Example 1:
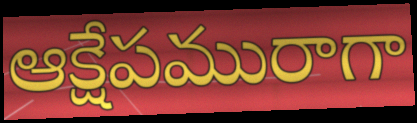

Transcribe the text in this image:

ఆక్షేపమురాగా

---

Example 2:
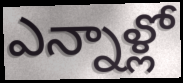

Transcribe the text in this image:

ఎన్నాళ్లో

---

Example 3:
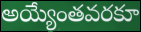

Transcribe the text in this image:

అయ్యేంతవరకూ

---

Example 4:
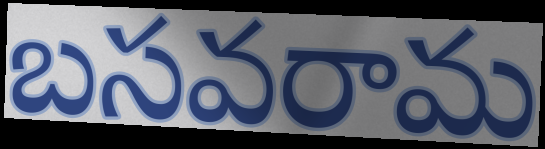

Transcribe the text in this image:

బసవరామ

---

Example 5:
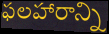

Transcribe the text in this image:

ఫలహారాన్ని